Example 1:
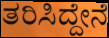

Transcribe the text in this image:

ತರಿಸಿದ್ದೇನೆ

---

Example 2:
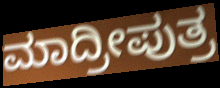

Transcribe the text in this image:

ಮಾದ್ರೀಪುತ್ರ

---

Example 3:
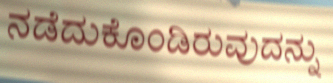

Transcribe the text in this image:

ನಡೆದುಕೊಂಡಿರುವುದನ್ನು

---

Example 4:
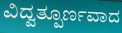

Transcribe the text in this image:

ವಿದ್ವತ್ಪೂರ್ಣವಾದ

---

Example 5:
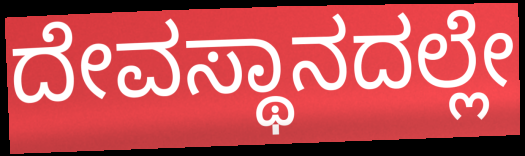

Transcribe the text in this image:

ದೇವಸ್ಥಾನದಲ್ಲೇ